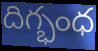
దిగ్భంధ